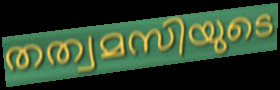
തത്വമസിയുടെ